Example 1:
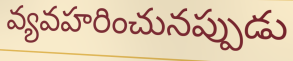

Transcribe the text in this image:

వ్యవహరించునప్పుడు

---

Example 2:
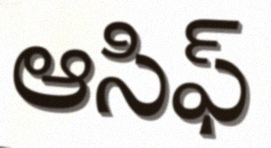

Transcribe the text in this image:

ఆసిఫ్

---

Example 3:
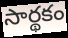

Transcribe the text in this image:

సార్థకం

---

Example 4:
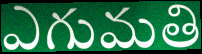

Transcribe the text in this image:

ఎగుమతి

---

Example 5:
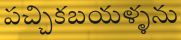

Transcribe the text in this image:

పచ్చికబయళ్ళను